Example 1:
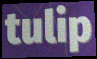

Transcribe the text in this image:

tulip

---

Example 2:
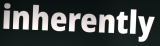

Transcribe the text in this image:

inherently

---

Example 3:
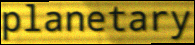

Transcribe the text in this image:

planetary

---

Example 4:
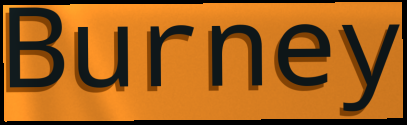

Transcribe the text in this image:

Burney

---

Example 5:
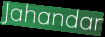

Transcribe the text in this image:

Jahandar